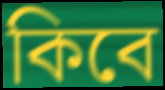
কিবে